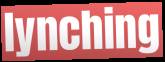
lynching